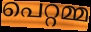
പെറ്റമ്മ